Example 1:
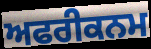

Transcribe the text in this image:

ਅਫਰੀਕਨਮ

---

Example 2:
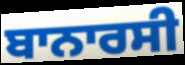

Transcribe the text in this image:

ਬਾਨਾਰਸੀ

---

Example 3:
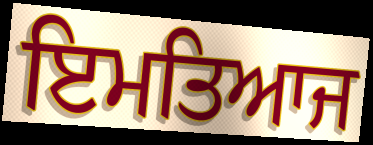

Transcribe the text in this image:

ਇਮਤਿਆਜ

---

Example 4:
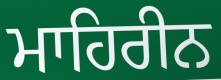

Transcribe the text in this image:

ਮਾਹਿਰੀਨ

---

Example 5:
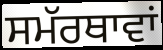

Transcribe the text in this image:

ਸਮੱਰਥਾਵਾਂ